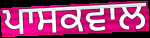
ਪਾਸਕਵਾਲ